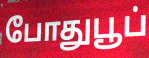
போதுபூப்